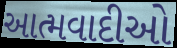
આત્મવાદીઓ